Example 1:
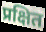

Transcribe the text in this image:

प्रक्षित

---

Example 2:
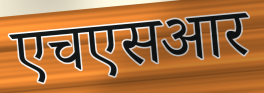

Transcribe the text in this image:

एचएसआर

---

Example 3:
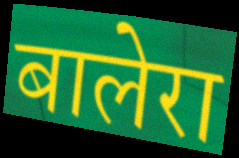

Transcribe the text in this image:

बालेरा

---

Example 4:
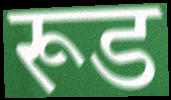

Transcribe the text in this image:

रूड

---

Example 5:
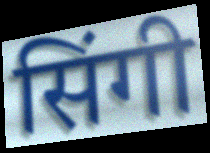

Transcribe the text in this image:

सिंगी